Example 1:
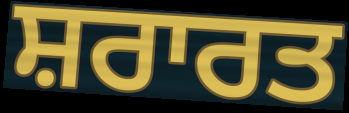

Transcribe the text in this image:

ਸ਼ਰਾਰਤ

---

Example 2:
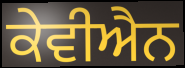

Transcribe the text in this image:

ਕੇਵੀਐਨ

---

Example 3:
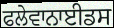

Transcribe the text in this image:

ਫਲੇਵਾਨਾਈਡਸ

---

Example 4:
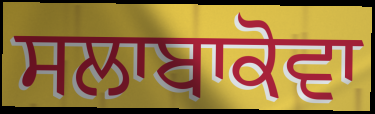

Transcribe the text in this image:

ਸਲਾਬਾਕੋਵਾ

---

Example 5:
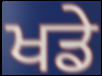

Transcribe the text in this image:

ਖਡੇ